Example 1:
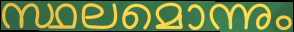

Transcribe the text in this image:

സ്ഥലമൊന്നും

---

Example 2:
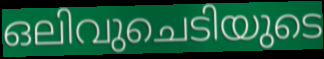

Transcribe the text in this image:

ഒലിവുചെടിയുടെ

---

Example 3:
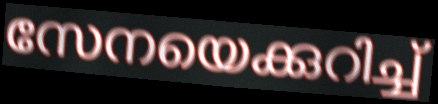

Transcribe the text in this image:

സേനയെക്കുറിച്ച്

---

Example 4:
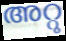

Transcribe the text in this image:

അറ്റു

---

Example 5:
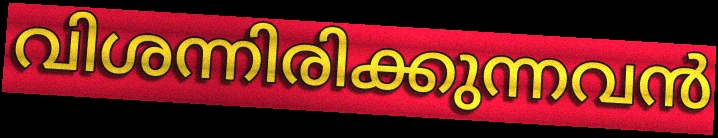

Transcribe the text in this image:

വിശന്നിരിക്കുന്നവൻ